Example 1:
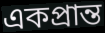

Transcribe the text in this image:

একপ্রান্ত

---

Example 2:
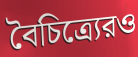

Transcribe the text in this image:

বৈচিত্র্যেরও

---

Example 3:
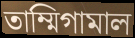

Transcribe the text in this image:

তাম্মিগামাল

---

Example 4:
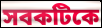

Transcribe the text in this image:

সবকটিকে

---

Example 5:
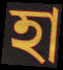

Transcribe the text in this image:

হা